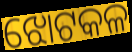
ଝୋଟକଳ